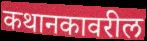
कथानकावरील